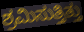
ಶ್ರಮಿಸುತ್ತಿತ್ತು